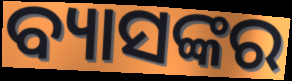
ବ୍ୟାସଙ୍କର